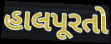
હાલપૂરતો